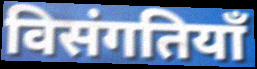
विसंगतियाँ